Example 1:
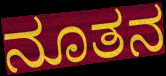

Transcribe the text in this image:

ನೂತನ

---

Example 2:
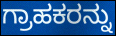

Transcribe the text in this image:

ಗ್ರಾಹಕರನ್ನು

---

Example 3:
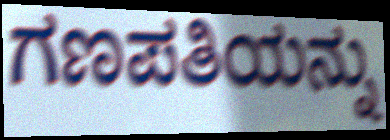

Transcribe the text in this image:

ಗಣಪತಿಯನ್ನು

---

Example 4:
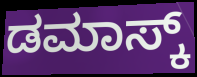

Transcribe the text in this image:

ಡಮಾಸ್ಕ್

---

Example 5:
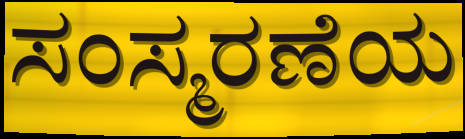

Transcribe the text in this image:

ಸಂಸ್ಮರಣೆಯ